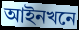
আইনখনে